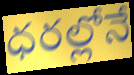
ధరల్లోనే